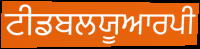
ਟੀਡਬਲਯੂਆਰਪੀ